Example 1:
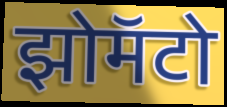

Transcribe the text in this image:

झोमॅटो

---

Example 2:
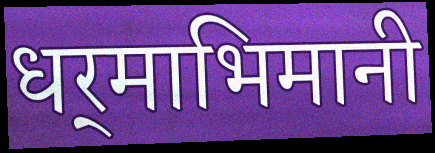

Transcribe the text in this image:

धर्माभिमानी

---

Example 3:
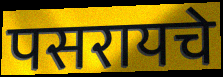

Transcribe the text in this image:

पसरायचे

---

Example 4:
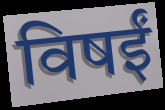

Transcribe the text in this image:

विषईं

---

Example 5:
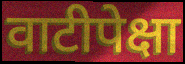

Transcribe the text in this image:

वाटीपेक्षा